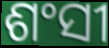
ଶଂସୀ